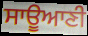
ਸਾਊਆਣੀ